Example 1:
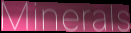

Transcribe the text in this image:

Minerals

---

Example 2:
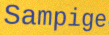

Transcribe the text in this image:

Sampige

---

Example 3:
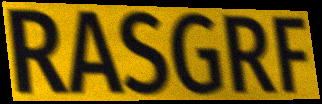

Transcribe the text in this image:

RASGRF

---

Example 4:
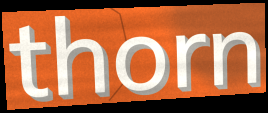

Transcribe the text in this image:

thorn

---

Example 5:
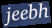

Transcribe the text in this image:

jeebh